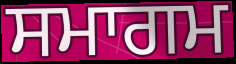
ਸਮਾਗਮ